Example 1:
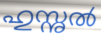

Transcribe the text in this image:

ഹുസ്നുൽ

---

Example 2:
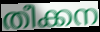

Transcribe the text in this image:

തീക്കന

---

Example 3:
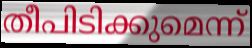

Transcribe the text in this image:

തീപിടിക്കുമെന്ന്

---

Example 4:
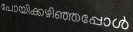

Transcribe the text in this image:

പോയിക്കഴിഞ്ഞപ്പോൾ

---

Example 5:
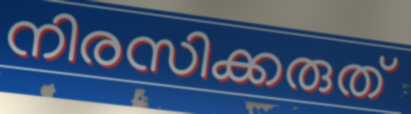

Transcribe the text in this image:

നിരസിക്കരുത്